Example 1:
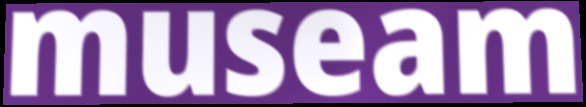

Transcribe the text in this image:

museam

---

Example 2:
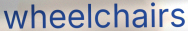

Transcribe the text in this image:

wheelchairs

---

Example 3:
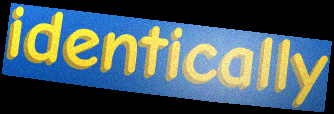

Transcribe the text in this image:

identically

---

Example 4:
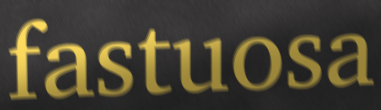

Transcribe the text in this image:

fastuosa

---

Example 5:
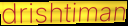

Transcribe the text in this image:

drishtiman